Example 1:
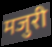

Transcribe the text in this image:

मजुरी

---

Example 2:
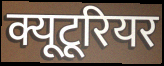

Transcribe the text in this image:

क्यूटूरियर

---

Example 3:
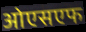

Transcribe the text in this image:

ओएसएफ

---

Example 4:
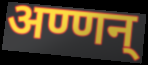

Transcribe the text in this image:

अण्णन्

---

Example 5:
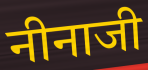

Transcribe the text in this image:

नीनाजी